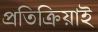
প্ৰতিক্ৰিয়াই